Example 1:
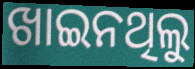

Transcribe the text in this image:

ଖାଇନଥିଲୁ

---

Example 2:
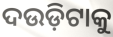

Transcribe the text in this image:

ଦଉଡ଼ିଟାକୁ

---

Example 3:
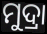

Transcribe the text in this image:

ମୁଦ୍ରା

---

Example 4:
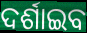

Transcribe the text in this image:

ଦର୍ଶାଇବ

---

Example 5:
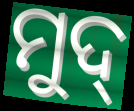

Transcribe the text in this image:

ମୁଦ୍